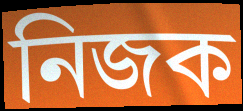
নিজক